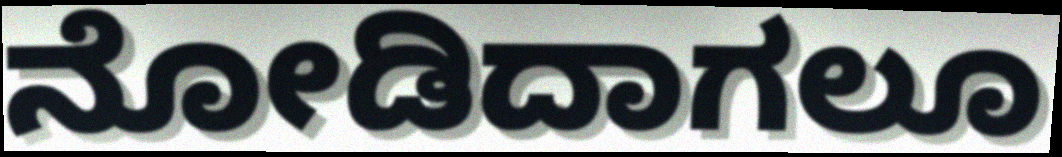
ನೋಡಿದಾಗಲೂ